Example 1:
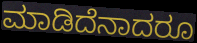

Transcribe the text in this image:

ಮಾಡಿದೆನಾದರೂ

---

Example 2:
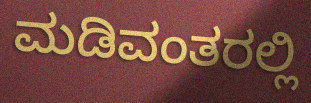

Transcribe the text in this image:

ಮಡಿವಂತರಲ್ಲಿ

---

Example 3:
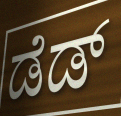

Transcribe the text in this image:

ಡೆಡ್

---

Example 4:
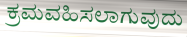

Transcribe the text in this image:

ಕ್ರಮವಹಿಸಲಾಗುವುದು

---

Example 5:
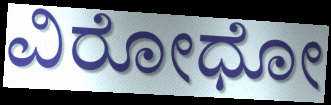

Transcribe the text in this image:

ವಿರೋಧೋ